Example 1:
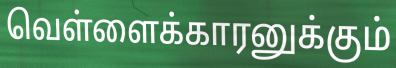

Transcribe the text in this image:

வெள்ளைக்காரனுக்கும்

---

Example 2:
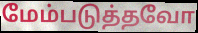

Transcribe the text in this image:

மேம்படுத்தவோ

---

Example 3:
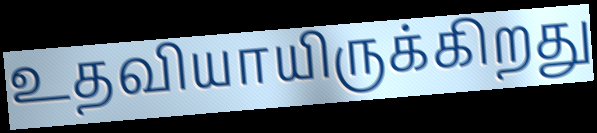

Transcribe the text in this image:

உதவியாயிருக்கிறது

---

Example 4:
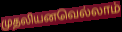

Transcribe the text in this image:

முதலியனவெல்லாம்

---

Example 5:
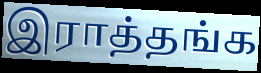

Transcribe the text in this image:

இராத்தங்க